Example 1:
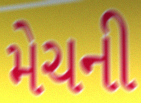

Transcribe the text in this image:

મેચની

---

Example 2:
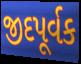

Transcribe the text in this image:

જીદપૂર્વક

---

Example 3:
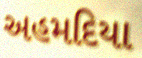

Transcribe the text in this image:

અહમદિયા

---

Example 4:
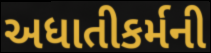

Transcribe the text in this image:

અધાતીકર્મની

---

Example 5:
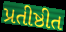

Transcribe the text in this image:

પ્રતીષ્ઠીત